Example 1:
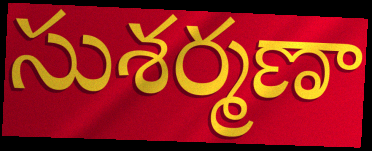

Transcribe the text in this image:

సుశర్మణా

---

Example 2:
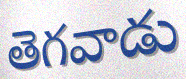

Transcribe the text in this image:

తెగవాడు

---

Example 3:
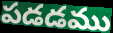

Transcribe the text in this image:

పడడము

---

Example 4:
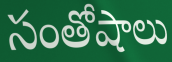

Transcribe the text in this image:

సంతోషాలు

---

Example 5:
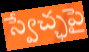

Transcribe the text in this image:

స్వేచ్ఛపై